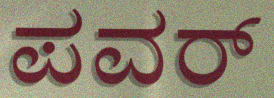
ಪವರ್